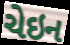
ચેઇન